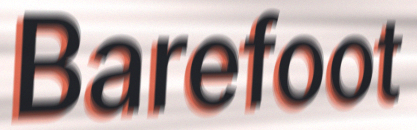
Barefoot